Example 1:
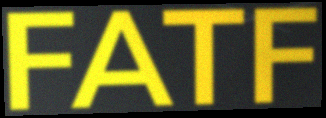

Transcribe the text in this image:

FATF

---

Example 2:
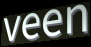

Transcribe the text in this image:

veen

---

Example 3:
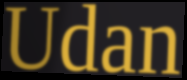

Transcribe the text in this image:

Udan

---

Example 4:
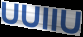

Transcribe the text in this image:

UUIIU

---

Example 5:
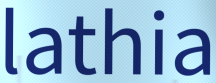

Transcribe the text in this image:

lathia